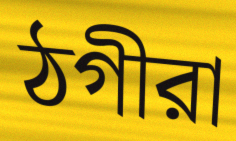
ঠগীরা